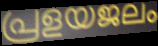
പ്രളയജലം